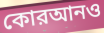
কোরআনও